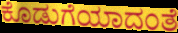
ಕೊಡುಗೆಯಾದಂತೆ